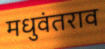
मधुवंतराव